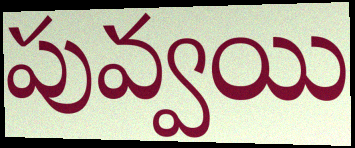
పువ్వయి